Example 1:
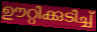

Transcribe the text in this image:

ഊറ്റിക്കുടിച്ച്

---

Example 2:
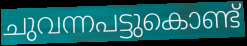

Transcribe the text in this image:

ചുവന്നപട്ടുകൊണ്ട്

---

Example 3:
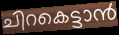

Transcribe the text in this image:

ചിറകെട്ടാൻ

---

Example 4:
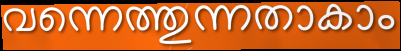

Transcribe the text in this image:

വന്നെത്തുന്നതാകാം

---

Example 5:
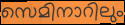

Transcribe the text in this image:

സെമിനാറിലും